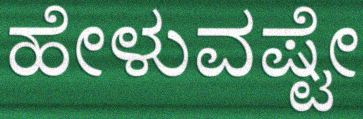
ಹೇಳುವಷ್ಟೇ